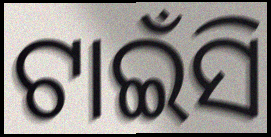
ଟାଇଁସି